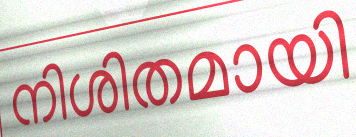
നിശിതമായി